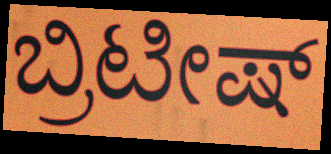
ಬ್ರಿಟೀಷ್